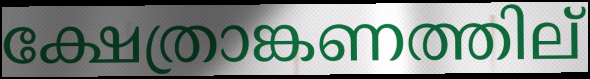
ക്ഷേത്രാങ്കണത്തില്